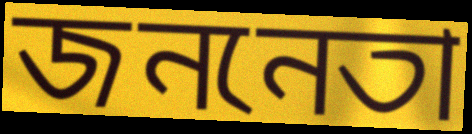
জননেতা